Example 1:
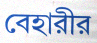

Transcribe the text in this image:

বেহারীর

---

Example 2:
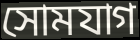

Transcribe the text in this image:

সোমযাগ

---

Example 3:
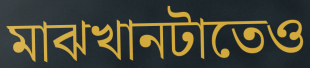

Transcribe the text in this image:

মাঝখানটাতেও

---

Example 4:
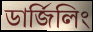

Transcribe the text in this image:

ডার্জিলিং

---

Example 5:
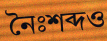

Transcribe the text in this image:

নৈঃশব্দও